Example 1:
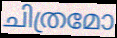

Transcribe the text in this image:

ചിത്രമോ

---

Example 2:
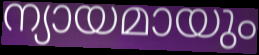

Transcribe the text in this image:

ന്യായമായും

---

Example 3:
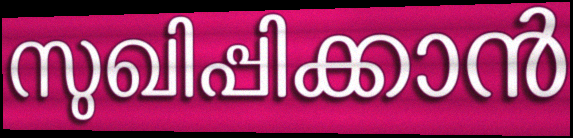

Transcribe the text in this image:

സുഖിപ്പിക്കാൻ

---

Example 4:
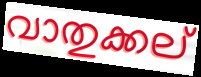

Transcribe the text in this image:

വാതുക്കല്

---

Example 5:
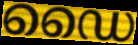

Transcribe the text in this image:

ഡൈ